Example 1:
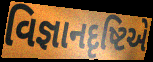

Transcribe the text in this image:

વિજ્ઞાનદૃષ્ટિએ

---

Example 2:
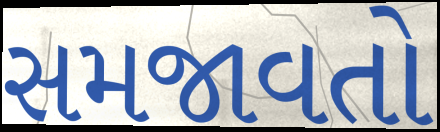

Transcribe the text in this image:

સમજાવતો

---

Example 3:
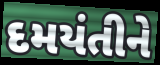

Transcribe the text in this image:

દમયંતીને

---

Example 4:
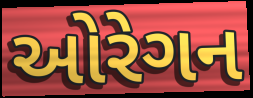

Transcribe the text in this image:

ઓરેગન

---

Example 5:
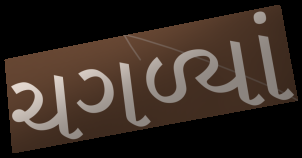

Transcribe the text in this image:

ચગળ્યાં